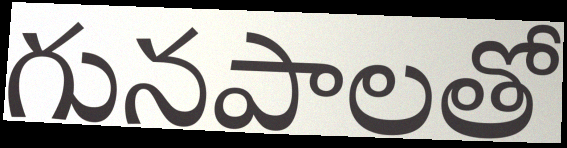
గునపాలతో